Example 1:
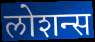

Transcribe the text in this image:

लोशन्स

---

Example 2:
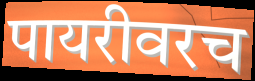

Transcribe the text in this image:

पायरीवरच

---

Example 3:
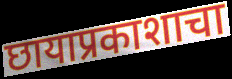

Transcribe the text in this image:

छायाप्रकाशाचा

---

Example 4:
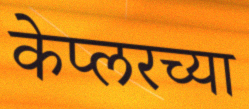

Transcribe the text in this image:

केप्लरच्या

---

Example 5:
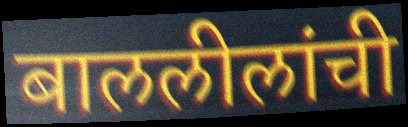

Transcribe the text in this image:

बाललीलांची